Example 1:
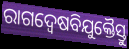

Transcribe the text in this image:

ରାଗଦ୍ୱେଷବିଯୁକ୍ତୈସ୍ତୁ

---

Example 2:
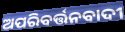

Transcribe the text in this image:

ଅପରିବର୍ତ୍ତନବାଦୀ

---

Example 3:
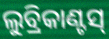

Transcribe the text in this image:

ଲୁବ୍ରିକାଣ୍ଟସ୍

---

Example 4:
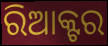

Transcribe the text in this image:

ରିଆକ୍ଟର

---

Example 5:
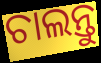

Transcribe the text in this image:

ଚାଲନ୍ତୁ